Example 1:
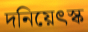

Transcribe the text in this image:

দনিয়েৎস্ক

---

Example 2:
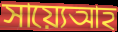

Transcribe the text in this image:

সায়্যেআহ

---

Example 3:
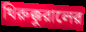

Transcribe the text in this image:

থিরুক্কুরালের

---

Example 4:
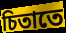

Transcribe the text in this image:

চিতাতে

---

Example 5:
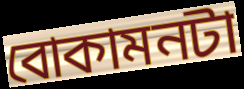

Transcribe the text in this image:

বোকামনটা